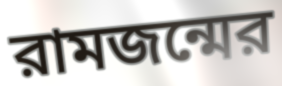
রামজন্মের